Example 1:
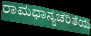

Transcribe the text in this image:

ರಾಮಧಾನ್ಯಚರಿತೆಯ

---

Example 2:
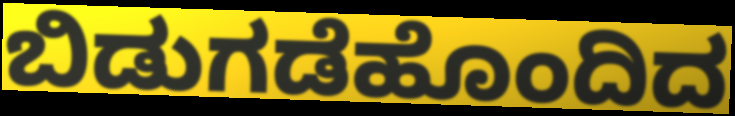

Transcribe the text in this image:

ಬಿಡುಗಡೆಹೊಂದಿದ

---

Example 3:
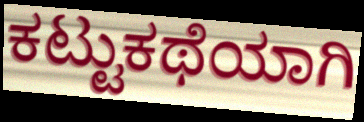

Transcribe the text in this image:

ಕಟ್ಟುಕಥೆಯಾಗಿ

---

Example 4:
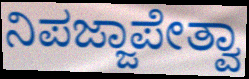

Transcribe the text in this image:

ನಿಪಜ್ಜಾಪೇತ್ವಾ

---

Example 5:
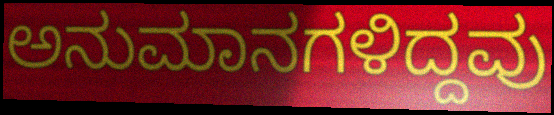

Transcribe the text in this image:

ಅನುಮಾನಗಳಿದ್ದವು